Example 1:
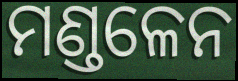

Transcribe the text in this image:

ମଣ୍ଡଳେନ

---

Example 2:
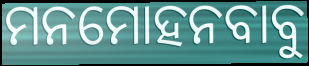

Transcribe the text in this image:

ମନମୋହନବାବୁ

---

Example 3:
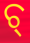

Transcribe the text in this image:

ଚ୍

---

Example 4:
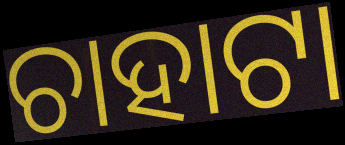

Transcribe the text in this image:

ଚାହାଟା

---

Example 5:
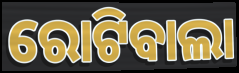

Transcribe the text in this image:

ରୋଟିବାଲା